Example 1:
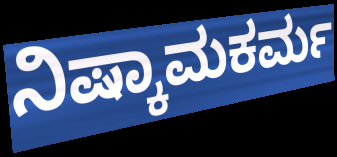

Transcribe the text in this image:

ನಿಷ್ಕಾಮಕರ್ಮ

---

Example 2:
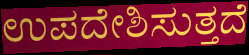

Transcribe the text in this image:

ಉಪದೇಶಿಸುತ್ತದೆ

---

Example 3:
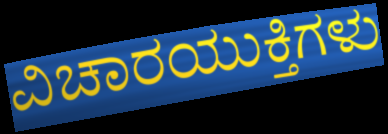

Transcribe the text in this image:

ವಿಚಾರಯುಕ್ತಿಗಳು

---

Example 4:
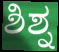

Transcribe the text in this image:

ಶಿಶ್ನ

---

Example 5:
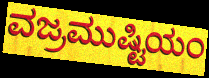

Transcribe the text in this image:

ವಜ್ರಮುಷ್ಟಿಯಂ